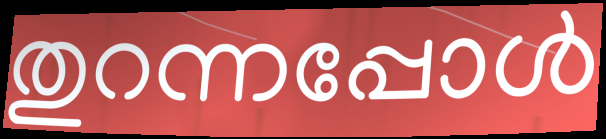
തുറന്നപ്പോൾ